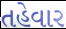
તહેવાર